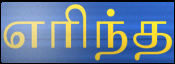
எரிந்த